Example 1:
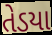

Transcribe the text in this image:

તેડયા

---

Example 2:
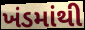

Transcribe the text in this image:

ખંડમાંથી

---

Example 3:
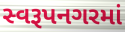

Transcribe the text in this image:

સ્વરૂપનગરમાં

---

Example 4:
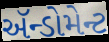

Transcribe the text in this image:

ઍન્ડોમેન્ટ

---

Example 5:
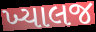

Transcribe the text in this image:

ખ્યાલજ